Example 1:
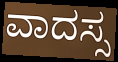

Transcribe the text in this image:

ವಾದಸ್ಸ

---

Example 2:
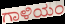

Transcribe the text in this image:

ಗಾಳಿಯಂ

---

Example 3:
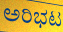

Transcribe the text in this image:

ಅರಿಭಟ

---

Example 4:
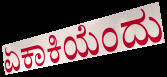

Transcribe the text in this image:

ಏಕಾಕಿಯೆಂದು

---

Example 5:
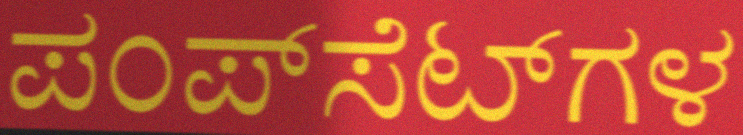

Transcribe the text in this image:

ಪಂಪ್‌ಸೆಟ್‌ಗಳ